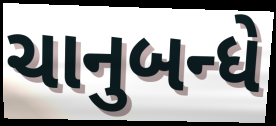
ચાનુબન્ધે